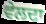
ਵੇਲਦਾ